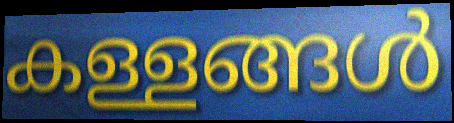
കള്ളങ്ങൾ